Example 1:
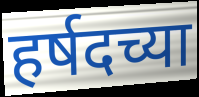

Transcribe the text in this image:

हर्षदच्या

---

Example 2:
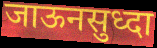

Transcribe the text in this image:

जाऊनसुध्दा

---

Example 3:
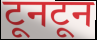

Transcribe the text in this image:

टूनटून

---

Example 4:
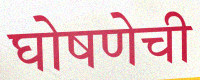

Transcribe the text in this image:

घोषणेची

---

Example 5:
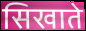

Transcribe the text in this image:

सिखाते